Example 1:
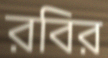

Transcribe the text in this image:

রবির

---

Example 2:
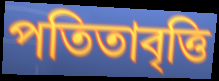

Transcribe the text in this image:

পতিতাবৃত্তি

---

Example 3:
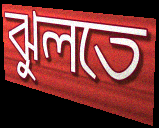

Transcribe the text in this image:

ঝুলতে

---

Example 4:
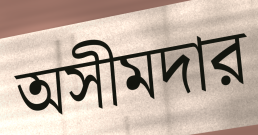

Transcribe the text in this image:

অসীমদার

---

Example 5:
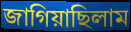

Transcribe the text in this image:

জাগিয়াছিলাম